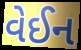
વેઈન